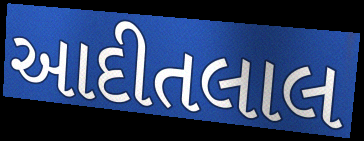
આદીતલાલ